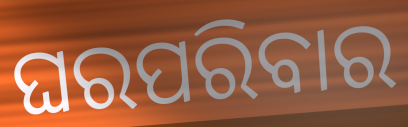
ଘରପରିବାର